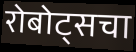
रोबोट्सचा